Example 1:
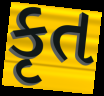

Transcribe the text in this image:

કૃત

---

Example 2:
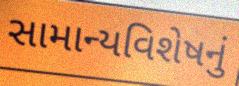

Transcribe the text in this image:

સામાન્યવિશેષનું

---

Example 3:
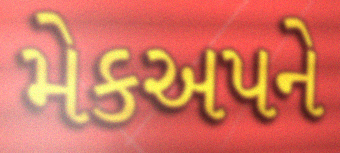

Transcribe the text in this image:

મેકઅપને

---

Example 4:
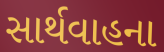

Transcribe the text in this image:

સાર્થવાહના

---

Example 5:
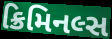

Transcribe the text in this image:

ક્રિમિનલ્સ